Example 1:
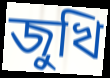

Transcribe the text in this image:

জুখি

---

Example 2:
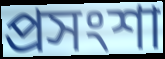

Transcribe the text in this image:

প্ৰসংশা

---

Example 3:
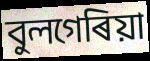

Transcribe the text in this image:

বুলগেৰিয়া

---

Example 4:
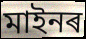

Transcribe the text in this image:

মাইনৰ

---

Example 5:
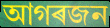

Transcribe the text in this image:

আগৰজন